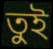
তুই